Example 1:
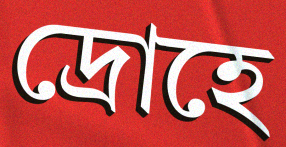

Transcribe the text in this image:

দ্রোহে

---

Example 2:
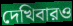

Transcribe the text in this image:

দেখিবারও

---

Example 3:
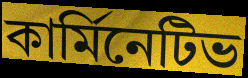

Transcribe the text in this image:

কার্মিনেটিভ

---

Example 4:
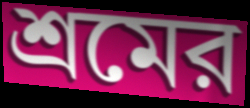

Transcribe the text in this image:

শ্রমের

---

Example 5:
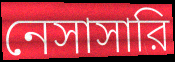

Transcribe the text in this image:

নেসাসারি